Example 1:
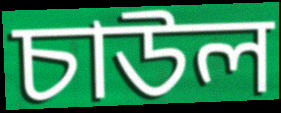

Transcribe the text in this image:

চাউল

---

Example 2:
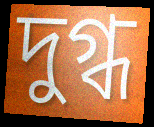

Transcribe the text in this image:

দুগ্ধ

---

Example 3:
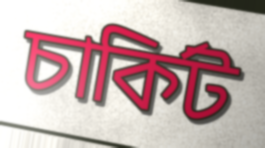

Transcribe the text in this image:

চাৰ্কিট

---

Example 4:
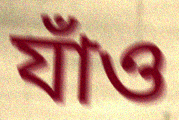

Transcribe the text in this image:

যাঁও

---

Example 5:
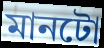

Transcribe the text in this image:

মানটো